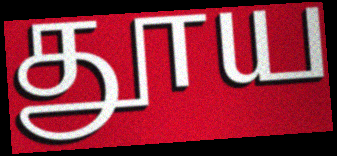
தூய